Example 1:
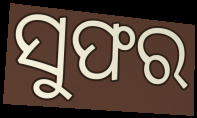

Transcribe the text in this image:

ସୁଫର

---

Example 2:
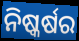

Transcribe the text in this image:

ନିଷ୍କର୍ଷର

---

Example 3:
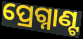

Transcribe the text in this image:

ପ୍ରେଗ୍ନାଣ୍ଟ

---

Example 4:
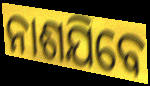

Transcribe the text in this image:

ନାଶଯିବେ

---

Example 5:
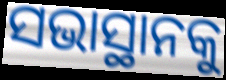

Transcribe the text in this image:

ସଭାସ୍ଥାନକୁ